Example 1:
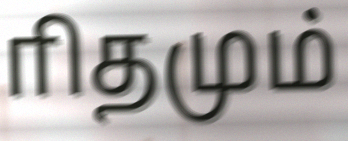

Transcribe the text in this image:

ரிதமும்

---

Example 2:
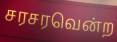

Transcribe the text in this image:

சரசரவென்ற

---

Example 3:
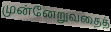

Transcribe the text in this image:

முன்னேறுவதைத்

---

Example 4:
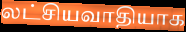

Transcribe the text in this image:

லட்சியவாதியாக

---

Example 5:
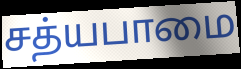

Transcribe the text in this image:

சத்யபாமை